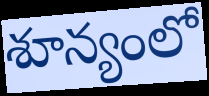
శూన్యంలో